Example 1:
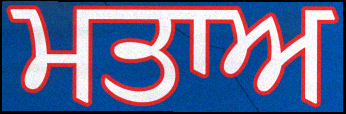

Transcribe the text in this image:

ਮਤਾਅ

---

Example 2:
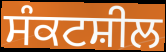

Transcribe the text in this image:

ਸੰਕਟਸ਼ੀਲ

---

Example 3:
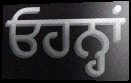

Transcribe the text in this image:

ਓਹਨ੍ਹਾਂ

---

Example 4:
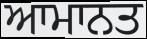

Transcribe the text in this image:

ਆਮਾਨਤ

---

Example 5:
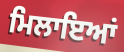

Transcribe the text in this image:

ਮਿਲਾਇਆਂ